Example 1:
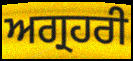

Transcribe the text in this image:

ਅਗ੍ਰਹਰੀ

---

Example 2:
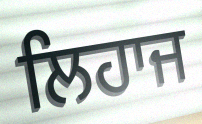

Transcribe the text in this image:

ਲਿਹਾਜ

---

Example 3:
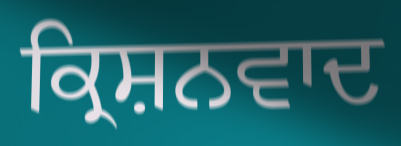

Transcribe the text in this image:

ਕ੍ਰਿਸ਼ਨਵਾਦ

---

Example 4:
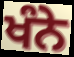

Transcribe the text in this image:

ਖੰਨੇ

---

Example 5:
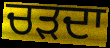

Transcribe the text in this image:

ਚੜਦਾ